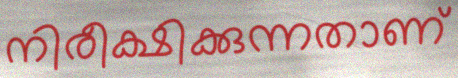
നിരീക്ഷിക്കുന്നതാണ്